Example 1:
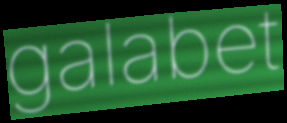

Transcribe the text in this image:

galabet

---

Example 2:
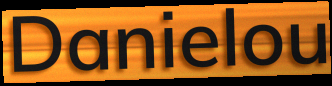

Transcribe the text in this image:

Danielou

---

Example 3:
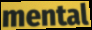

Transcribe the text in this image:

mental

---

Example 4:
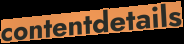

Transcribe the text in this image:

contentdetails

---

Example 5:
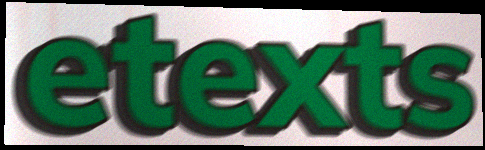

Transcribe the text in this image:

etexts